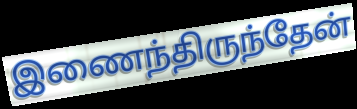
இணைந்திருந்தேன்